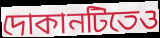
দোকানটিতেও